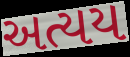
અત્યય